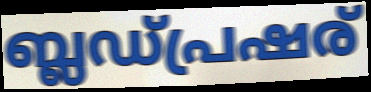
ബ്ലഡ്പ്രഷര്